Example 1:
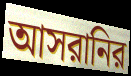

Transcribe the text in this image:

আসরানির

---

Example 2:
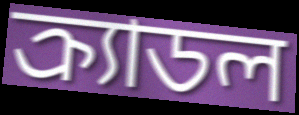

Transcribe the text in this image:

ক্র্যাডল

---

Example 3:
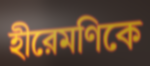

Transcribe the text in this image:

হীরেমণিকে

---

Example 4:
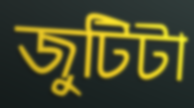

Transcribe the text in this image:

জুটিটা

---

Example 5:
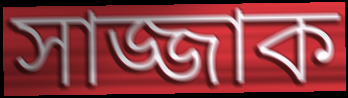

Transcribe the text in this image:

সাজ্জাক